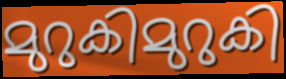
മുറുകിമുറുകി